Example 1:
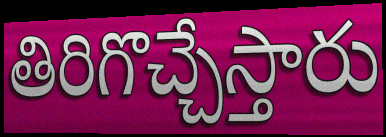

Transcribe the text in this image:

తిరిగొచ్చేస్తారు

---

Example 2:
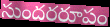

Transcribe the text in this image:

సుందరరూపం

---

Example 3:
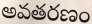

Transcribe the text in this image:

అవతరణం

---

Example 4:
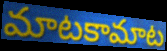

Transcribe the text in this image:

మాటకామాట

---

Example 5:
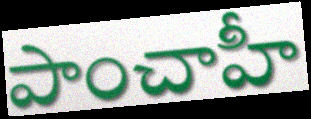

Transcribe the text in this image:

పాంచాహీ